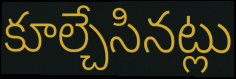
కూల్చేసినట్లు